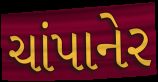
ચાંપાનેર